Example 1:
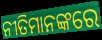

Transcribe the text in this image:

ନୀତିମାନଙ୍କରେ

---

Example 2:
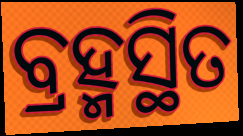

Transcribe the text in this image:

ବ୍ରହ୍ମସ୍ଥିତ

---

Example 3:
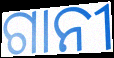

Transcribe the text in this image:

ଗାନୀ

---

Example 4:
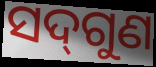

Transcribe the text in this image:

ସଦ୍‌ଗୁଣ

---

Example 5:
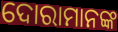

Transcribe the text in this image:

ଦୋରାମାନଙ୍କ